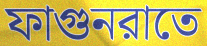
ফাগুনরাতে